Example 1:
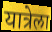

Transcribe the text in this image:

यात्रेला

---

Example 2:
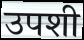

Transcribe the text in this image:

उपशी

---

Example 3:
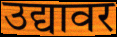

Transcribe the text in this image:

उद्यावर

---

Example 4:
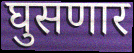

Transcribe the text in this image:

घुसणार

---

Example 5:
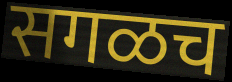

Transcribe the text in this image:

सगळच